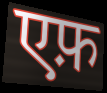
एफ़